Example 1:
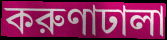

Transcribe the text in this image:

করুণাঢালা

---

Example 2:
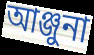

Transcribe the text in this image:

আঞ্জুনা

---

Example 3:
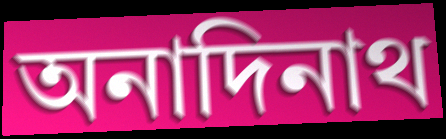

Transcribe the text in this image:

অনাদিনাথ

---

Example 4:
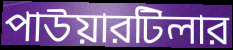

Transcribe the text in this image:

পাউয়ারটিলার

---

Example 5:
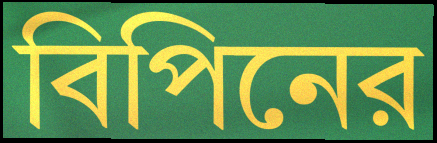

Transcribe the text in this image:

বিপিনের